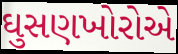
ઘુસણખોરોએ